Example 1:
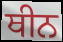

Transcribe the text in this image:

ਥੀਨ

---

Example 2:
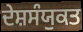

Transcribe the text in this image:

ਦੇਸ਼ਸੰਯੁਕਤ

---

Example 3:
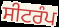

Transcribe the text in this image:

ਸੀਟਰੰਪ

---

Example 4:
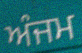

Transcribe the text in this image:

ਅੰਜਮ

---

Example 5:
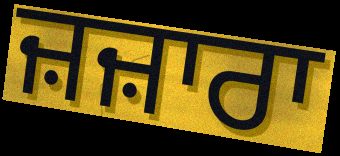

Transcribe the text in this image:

ਜ਼ਜ਼ਾਰਾ